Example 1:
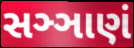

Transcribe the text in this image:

સઞ્ઞાણં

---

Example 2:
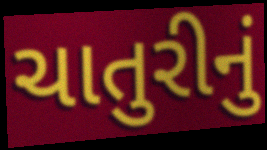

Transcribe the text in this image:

ચાતુરીનું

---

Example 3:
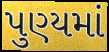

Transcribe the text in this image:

પુણ્યમાં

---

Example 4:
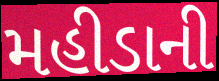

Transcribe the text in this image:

મહીડાની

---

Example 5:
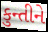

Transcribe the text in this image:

કુન્તીને